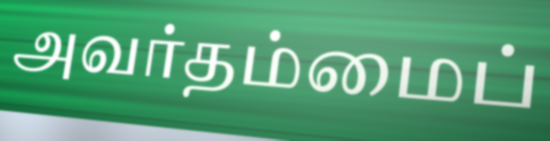
அவர்தம்மைப்